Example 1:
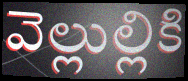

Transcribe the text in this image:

వెల్లుల్లికి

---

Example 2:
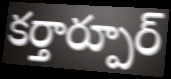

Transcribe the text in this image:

కర్తార్పూర్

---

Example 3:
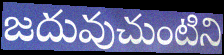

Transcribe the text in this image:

జదువుచుంటిని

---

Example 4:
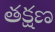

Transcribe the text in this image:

తక్షణ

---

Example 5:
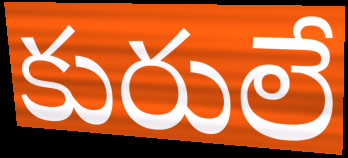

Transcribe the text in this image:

కురులే